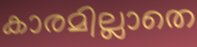
കാരമില്ലാതെ